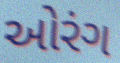
ઓરંગ